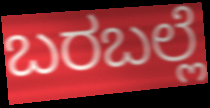
ಬರಬಲ್ಲೆ